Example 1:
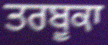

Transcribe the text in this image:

ਤਰਬੂਕਾ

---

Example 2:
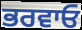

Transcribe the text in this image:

ਭਰਵਾਓ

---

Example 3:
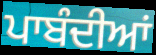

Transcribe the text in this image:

ਪਾਬੰਦੀਆਂ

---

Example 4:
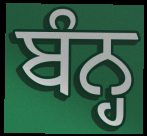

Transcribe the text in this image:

ਬੰਨ੍ਹ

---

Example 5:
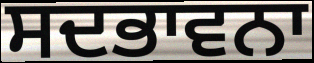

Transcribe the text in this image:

ਸਦਭਾਵਨਾ